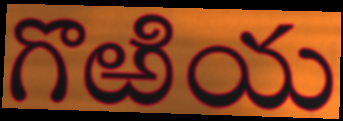
గొఱియ